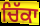
ਚਿੱਕਾ